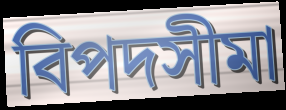
বিপদসীমা